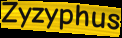
Zyzyphus